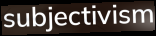
subjectivism